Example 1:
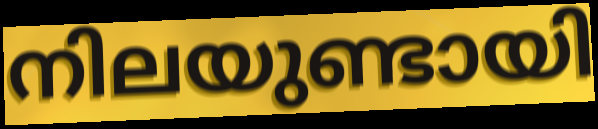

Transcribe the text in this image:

നിലയുണ്ടായി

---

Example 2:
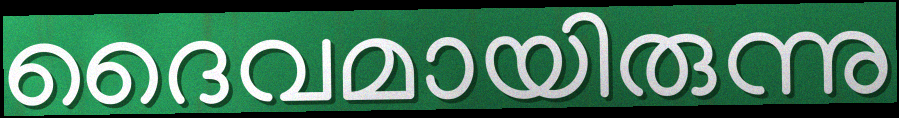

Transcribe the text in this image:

ദൈവമായിരുന്നു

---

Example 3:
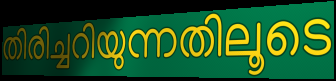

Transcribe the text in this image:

തിരിച്ചറിയുന്നതിലൂടെ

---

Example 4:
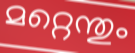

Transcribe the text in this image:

മറ്റെന്തും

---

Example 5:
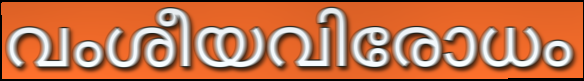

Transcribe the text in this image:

വംശീയവിരോധം